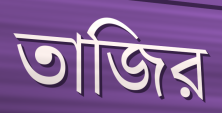
তাজির